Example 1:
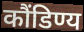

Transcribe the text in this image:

कौंडिण्य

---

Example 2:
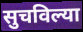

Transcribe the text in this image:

सुचविल्या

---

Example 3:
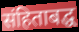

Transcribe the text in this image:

संहिताबद्ध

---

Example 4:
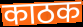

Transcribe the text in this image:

काठक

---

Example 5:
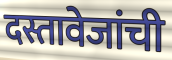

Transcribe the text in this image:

दस्तावेजांची